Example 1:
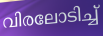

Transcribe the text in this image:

വിരലോടിച്ച്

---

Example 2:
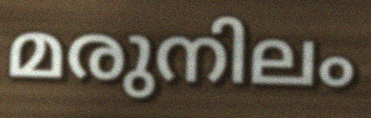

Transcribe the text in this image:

മരുനിലം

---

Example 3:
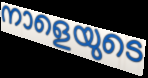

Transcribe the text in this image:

നാളെയുടെ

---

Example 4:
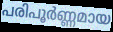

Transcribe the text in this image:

പരിപൂർണ്ണമായ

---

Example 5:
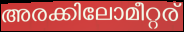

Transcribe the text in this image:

അരക്കിലോമീറ്റര്